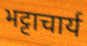
भट्टाचार्य